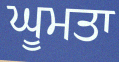
ਘੂਮਤਾ